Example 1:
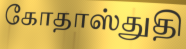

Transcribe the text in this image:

கோதாஸ்துதி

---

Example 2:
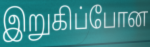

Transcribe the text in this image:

இறுகிப்போன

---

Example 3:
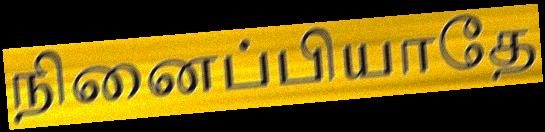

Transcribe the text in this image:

நினைப்பியாதே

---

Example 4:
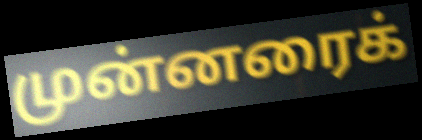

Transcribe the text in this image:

முன்னரைக்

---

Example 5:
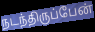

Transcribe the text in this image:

நடந்திருப்பேன்